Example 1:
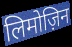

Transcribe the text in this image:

लिमोज़िन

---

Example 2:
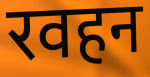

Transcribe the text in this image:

रवहन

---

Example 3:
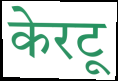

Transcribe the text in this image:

केरटू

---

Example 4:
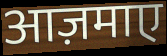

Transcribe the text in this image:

आज़माए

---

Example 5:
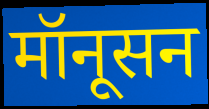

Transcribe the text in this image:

मॉनूसन